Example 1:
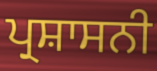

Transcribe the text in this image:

ਪ੍ਰਸ਼ਾਸਨੀ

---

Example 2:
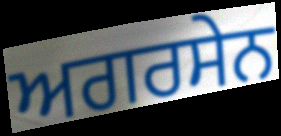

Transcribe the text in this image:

ਅਗਰਸੇਨ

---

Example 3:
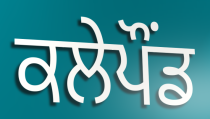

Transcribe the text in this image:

ਕਲੇਪੌਂਡ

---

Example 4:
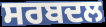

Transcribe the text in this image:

ਸਰਬਦਲ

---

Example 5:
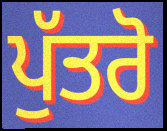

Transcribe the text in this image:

ਪੁੱਤਰੋ